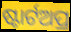
ଷ୍ଟାର୍ଟଅପ୍ର